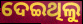
ଦେଇଥିଲୁ